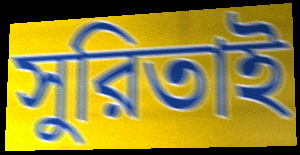
সুরিতাই